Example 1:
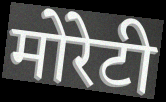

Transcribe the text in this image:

मोरेटी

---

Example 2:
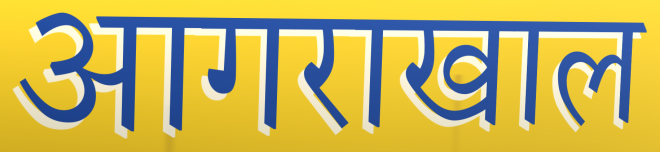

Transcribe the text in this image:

आगराखाल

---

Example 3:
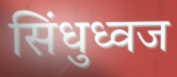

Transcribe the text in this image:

सिंधुध्वज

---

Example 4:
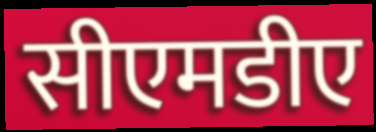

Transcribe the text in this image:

सीएमडीए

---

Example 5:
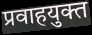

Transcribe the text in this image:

प्रवाहयुक्त